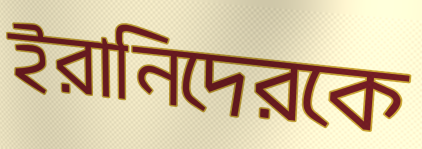
ইরানিদেরকে